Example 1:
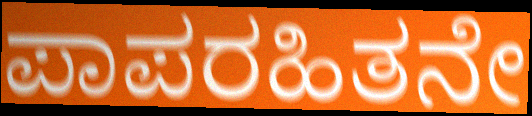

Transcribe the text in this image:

ಪಾಪರಹಿತನೇ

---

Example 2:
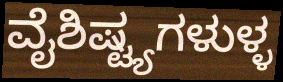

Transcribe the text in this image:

ವೈಶಿಷ್ಟ್ಯಗಳುಳ್ಳ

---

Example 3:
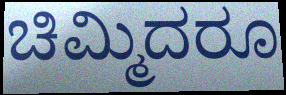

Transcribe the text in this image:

ಚಿಮ್ಮಿದರೂ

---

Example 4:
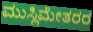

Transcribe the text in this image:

ಮುಸ್ಲಿಮೇತರರ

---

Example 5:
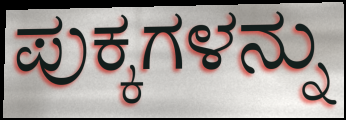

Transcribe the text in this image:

ಪುಕ್ಕಗಳನ್ನು